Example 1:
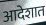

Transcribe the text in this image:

आदेशात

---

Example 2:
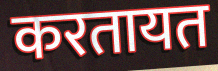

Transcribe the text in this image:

करतायत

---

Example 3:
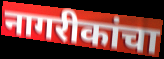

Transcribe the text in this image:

नागरीकांचा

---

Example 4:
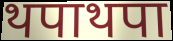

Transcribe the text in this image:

थपाथपा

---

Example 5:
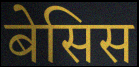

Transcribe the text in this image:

बेसिस